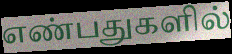
எண்பதுகளில்